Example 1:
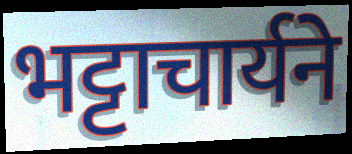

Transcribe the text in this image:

भट्टाचार्यने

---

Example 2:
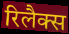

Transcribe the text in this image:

रिलैक्‍स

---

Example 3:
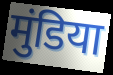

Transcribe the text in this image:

मुंडिया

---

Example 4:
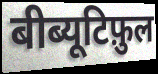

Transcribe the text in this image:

बीब्यूटिफ़ुल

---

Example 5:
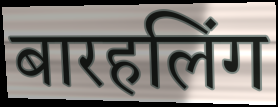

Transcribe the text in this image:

बारहलिंग